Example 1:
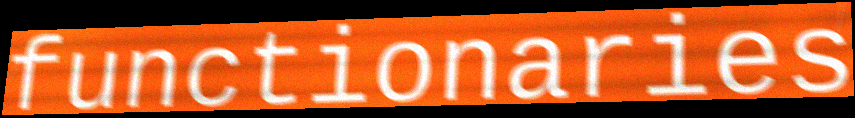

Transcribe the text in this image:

functionaries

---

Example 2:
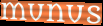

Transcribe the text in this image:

munus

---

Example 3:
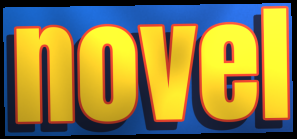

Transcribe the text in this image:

novel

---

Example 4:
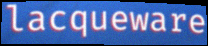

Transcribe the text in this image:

lacqueware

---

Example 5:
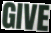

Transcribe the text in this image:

GIVE